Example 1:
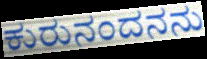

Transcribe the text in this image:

ಕುರುನಂದನನು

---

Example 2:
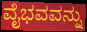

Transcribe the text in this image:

ವೈಭವವನ್ನು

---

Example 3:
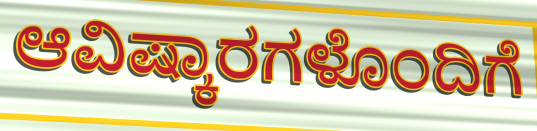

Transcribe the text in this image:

ಆವಿಷ್ಕಾರಗಳೊಂದಿಗೆ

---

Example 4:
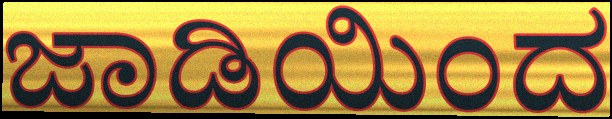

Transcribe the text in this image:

ಜಾಡಿಯಿಂದ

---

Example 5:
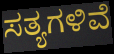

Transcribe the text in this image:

ಸತ್ಯಗಳಿವೆ